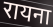
रायना